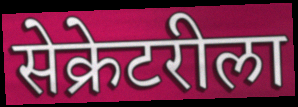
सेक्रेटरीला